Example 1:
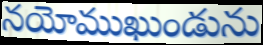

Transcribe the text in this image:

నయోముఖుండును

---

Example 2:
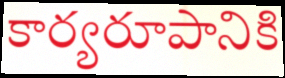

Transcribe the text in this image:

కార్యరూపానికి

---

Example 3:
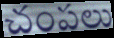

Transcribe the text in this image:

చంపలు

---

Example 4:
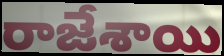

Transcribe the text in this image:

రాజేశాయి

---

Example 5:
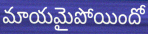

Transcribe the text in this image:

మాయమైపోయిందో